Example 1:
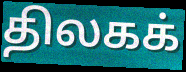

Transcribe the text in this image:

திலகக்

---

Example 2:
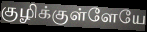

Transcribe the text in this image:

குழிக்குள்ளேயே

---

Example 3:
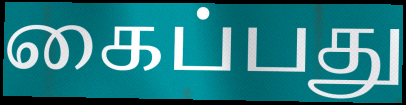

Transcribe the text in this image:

கைப்பது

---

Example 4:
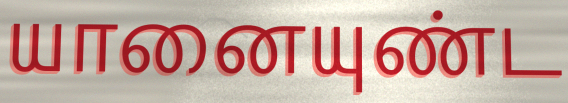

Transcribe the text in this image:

யானையுண்ட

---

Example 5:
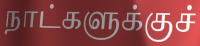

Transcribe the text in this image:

நாட்களுக்குச்